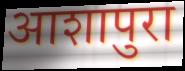
आशापुरा